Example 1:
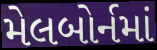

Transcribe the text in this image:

મેલબોર્નમાં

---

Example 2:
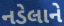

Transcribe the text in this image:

નડેલાને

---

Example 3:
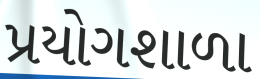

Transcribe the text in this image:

પ્રયોગશાળા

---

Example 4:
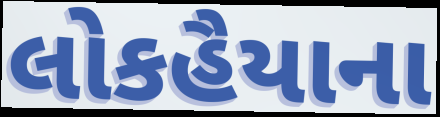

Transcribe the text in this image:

લોકહૈયાના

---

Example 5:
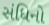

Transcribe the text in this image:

સંધિનો